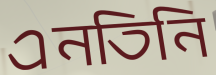
এনতিনি